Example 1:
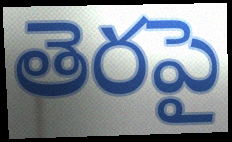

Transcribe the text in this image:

తెరపై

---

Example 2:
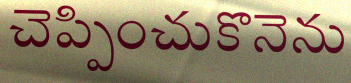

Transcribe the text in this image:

చెప్పించుకొనెను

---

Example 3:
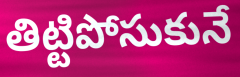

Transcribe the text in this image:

తిట్టిపోసుకునే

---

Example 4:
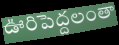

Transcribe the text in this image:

ఊరిపెద్దలంతా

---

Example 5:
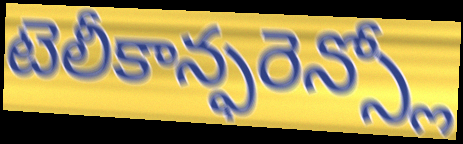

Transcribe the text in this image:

టెలీకాన్ఫరెన్స్లో